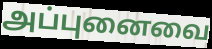
அப்புனைவை